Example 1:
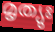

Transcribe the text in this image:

മൃത്യുഃ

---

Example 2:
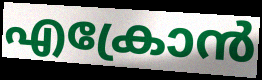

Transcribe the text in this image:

എക്രോൻ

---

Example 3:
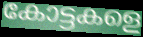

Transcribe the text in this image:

കോട്ടകളെ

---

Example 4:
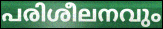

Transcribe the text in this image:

പരിശീലനവും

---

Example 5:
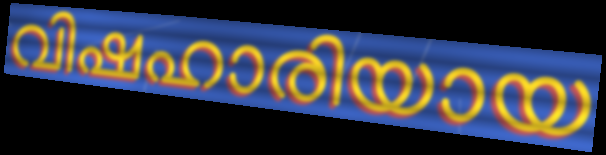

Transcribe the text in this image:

വിഷഹാരിയായ